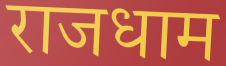
राजधाम